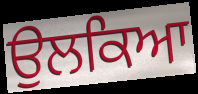
ਉਲਕਿਆ